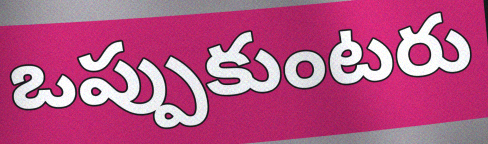
ఒప్పుకుంటరు